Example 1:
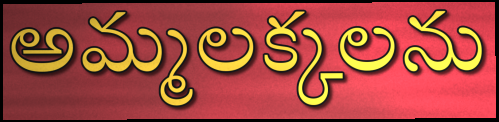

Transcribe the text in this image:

అమ్మలక్కలను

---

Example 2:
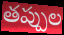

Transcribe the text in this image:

తప్పుల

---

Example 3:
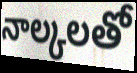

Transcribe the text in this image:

నాల్కలతో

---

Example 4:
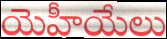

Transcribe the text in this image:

యెహీయేలు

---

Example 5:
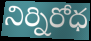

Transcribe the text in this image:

నిర్నిరోధ